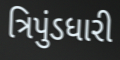
ત્રિપુંડધારી